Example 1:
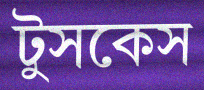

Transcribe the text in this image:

টুসকেস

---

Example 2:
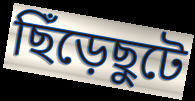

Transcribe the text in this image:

ছিঁড়েছুটে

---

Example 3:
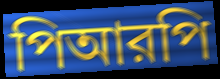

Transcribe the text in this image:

পিআরপি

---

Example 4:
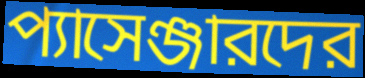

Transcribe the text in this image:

প্যাসেঞ্জারদের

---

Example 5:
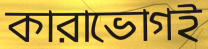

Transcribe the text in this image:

কারাভোগই